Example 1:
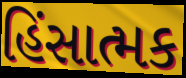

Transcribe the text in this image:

હિંસાત્મક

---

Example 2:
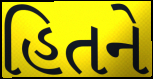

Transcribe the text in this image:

હિતને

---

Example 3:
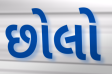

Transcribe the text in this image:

છોલો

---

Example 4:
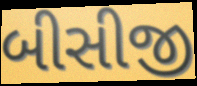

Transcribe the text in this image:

બીસીજી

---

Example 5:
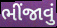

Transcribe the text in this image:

ભીંજાવું